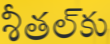
శీతల్‌కు